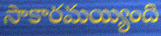
సాకారమయ్యింది